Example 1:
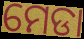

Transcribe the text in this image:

ମେଡା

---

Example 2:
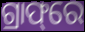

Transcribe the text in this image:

ଗ୍ରାଫ୍‌ରେ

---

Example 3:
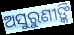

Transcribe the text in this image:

ଅସୁରୁଣୀଙ୍କି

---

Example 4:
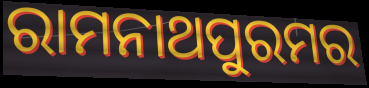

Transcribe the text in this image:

ରାମନାଥପୁରମର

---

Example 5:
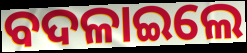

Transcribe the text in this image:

ବଦଳାଇଲେ